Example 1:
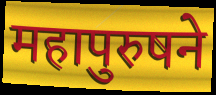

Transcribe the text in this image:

महापुरुषने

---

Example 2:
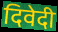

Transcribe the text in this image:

दिवेदी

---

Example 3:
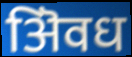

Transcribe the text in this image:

ऄिवध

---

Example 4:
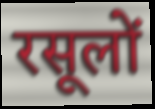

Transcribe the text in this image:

रसूलों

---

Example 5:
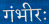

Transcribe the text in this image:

गंभीरः